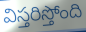
విస్తరిస్తోంది